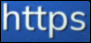
https